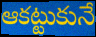
ఆకట్టుకునే